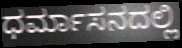
ಧರ್ಮಾಸನದಲ್ಲಿ